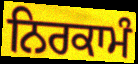
ਨਿਰਕਾਮੰ